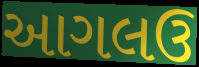
આગલઉ